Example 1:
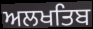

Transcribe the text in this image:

ਅਲਖਤਿਬ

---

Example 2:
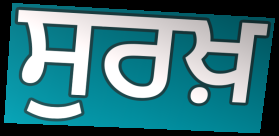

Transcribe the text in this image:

ਸੁਰਖ਼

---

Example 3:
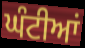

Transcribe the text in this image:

ਘੰਟੀਆਂ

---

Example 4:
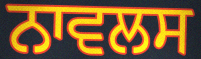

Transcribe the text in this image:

ਨਾਵਲਸ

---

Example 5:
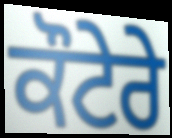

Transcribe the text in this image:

ਕੌਟੇਰੇ